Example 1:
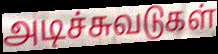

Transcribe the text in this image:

அடிச்சுவடுகள்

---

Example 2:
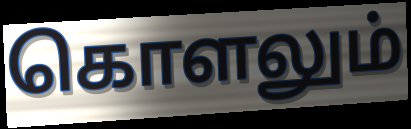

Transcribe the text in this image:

கொளலும்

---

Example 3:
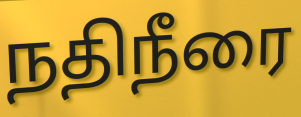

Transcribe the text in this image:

நதிநீரை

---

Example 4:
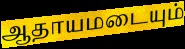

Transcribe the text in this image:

ஆதாயமடையும்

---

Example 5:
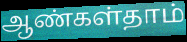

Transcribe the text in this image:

ஆண்கள்தாம்